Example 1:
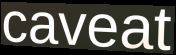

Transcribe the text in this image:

caveat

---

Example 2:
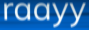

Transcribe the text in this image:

raayy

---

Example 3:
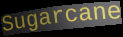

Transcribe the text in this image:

Sugarcane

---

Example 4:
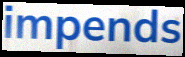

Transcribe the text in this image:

impends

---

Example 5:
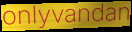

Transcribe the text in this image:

onlyvandan